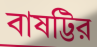
বাষট্টির